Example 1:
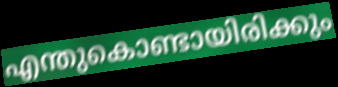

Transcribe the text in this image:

എന്തുകൊണ്ടായിരിക്കും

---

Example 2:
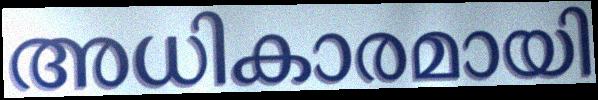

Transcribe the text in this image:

അധികാരമായി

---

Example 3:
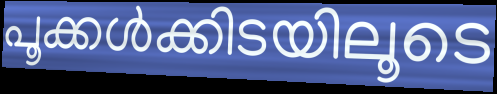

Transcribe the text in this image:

പൂക്കൾക്കിടയിലൂടെ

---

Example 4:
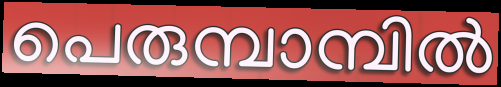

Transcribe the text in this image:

പെരുമ്പാമ്പിൽ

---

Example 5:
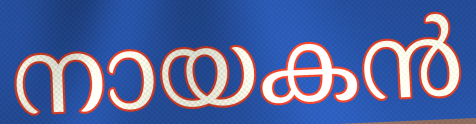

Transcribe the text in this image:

നായകൻ